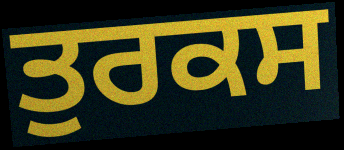
ਤੁਰਕਸ